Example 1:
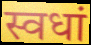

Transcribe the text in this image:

स्वधां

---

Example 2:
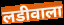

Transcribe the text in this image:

लडीवाला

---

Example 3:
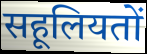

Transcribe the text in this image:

सहूलियतों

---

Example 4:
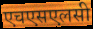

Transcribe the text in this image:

एचएसएलसी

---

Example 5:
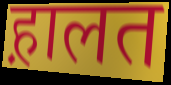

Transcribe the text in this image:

ह़ालत